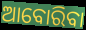
ଆବୋରିବା